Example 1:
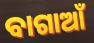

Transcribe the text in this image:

ବାଗାଆଁ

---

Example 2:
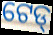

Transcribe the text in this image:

ଟେଡ୍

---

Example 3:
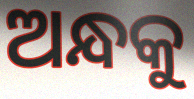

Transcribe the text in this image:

ଅନ୍ଧକୁ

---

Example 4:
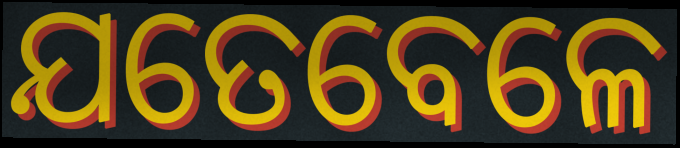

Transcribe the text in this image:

ଯତେବେଳେ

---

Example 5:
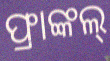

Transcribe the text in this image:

ଫ୍ରାଙ୍କଲ୍